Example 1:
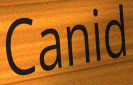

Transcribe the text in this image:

Canid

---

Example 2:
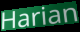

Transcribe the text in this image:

Harian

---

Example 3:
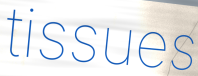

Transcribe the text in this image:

tissues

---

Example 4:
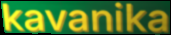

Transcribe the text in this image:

kavanika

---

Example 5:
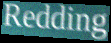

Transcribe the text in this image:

Redding